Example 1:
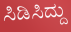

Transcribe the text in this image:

ಸಿಡಿಸಿದ್ದು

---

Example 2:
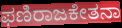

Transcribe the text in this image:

ಫಣಿರಾಜಕೇತನಾ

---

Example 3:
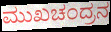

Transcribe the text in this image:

ಮುಖಚಂದ್ರನ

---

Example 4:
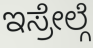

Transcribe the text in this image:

ಇಸ್ರೇಲ್ಗೆ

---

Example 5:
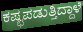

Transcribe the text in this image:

ಕಷ್ಟಪಡುತ್ತಿದ್ದಾಳೆ